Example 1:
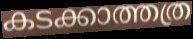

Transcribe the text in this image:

കടക്കാത്തത്ര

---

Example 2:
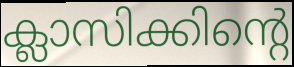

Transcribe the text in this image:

ക്ലാസിക്കിന്റെ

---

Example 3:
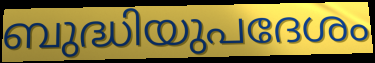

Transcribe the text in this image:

ബുദ്ധിയുപദേശം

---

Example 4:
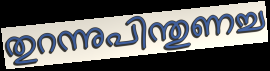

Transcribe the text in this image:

തുറന്നുപിന്തുണച്ച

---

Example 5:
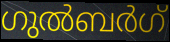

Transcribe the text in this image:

ഗുൽബർഗ്